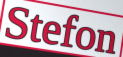
Stefon